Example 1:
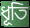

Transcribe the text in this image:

ধূতি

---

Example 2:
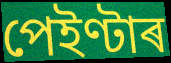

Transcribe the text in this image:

পেইণ্টাৰ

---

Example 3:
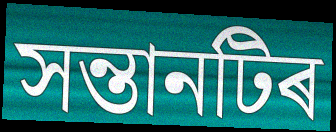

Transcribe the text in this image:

সন্তানটিৰ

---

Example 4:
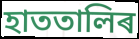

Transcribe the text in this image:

হাততালিৰ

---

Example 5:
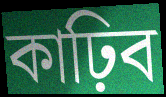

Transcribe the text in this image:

কাঢ়িব